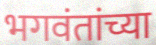
भगवंतांच्या